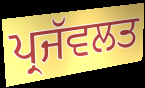
ਪ੍ਰਜੱਵਲਤ